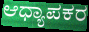
ಆಧ್ಯಾಪಕರ